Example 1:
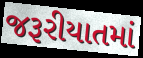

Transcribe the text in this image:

જરૂરીયાતમાં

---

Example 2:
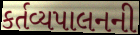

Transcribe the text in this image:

કર્તવ્યપાલનની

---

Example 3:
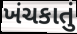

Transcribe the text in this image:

ખંચકાતું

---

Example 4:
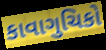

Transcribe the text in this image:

કાવાગુચિકો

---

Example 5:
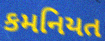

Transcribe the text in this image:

કમનિયત